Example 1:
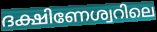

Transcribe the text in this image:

ദക്ഷിണേശ്വറിലെ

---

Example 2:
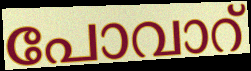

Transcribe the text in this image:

പോവാറ്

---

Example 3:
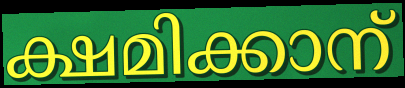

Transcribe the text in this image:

ക്ഷമിക്കാന്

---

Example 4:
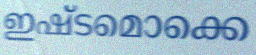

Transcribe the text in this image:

ഇഷ്ടമൊക്കെ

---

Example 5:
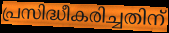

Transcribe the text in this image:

പ്രസിദ്ധീകരിച്ചതിന്